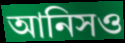
আনিসও